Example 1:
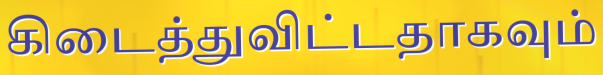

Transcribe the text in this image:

கிடைத்துவிட்டதாகவும்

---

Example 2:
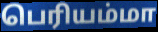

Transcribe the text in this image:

பெரியம்மா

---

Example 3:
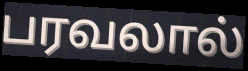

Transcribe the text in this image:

பரவலால்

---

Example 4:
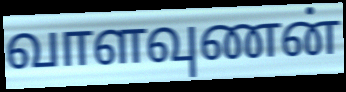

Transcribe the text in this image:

வாளவுணன்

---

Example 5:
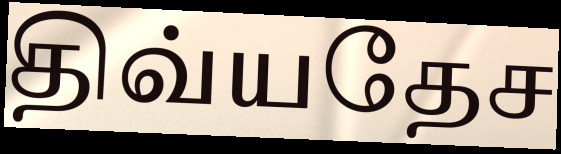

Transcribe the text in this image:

திவ்யதேச